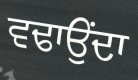
ਵਢਾਉਂਦਾ